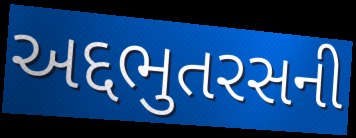
અદ્દભુતરસની